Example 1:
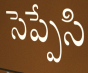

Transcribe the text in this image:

సెప్పేసి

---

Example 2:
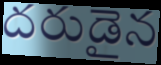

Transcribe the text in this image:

దరుడైన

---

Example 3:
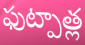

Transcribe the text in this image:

ఫుట్పాత్ల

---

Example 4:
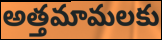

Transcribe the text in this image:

అత్తమామలకు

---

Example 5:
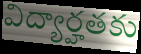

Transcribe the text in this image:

విద్యార్హతకు